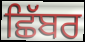
ਛਿੱਬਰ